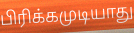
பிரிக்கமுடியாது